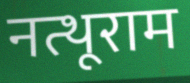
नत्थूराम